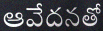
ఆవేదనతో